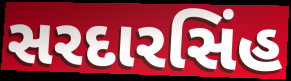
સરદારસિંહ